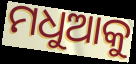
ମଧୁଆକୁ